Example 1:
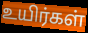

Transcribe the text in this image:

உயிர்கள்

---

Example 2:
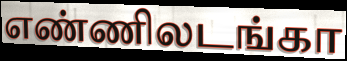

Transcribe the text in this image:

எண்ணிலடங்கா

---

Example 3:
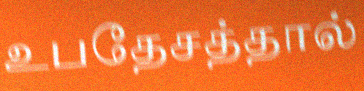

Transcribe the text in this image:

உபதேசத்தால்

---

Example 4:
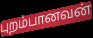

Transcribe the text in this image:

புறம்பானவன்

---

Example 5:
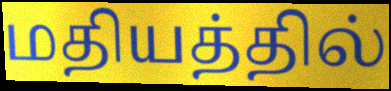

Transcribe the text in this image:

மதியத்தில்